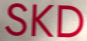
SKD